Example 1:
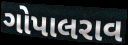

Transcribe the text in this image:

ગોપાલરાવ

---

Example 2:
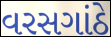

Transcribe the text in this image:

વરસગાંઠે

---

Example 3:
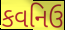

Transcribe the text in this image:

કવનિઉ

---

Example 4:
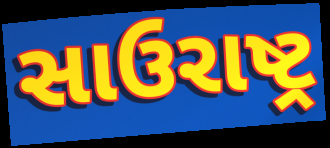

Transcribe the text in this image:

સાઉરાષ્ટ્ર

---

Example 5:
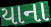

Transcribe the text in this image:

યાના